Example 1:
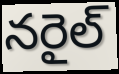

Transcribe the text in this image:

నరైల్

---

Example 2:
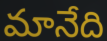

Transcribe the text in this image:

మానేది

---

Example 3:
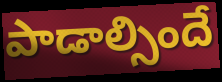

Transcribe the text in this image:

పాడాల్సిందే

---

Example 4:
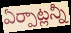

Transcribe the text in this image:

ఏర్పాట్లన్నీ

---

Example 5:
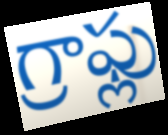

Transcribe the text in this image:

గ్రాఫ్లు